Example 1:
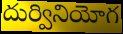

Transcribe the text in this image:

దుర్వినియోగ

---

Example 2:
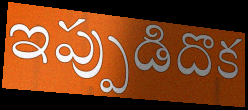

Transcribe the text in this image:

ఇప్పుడిదొక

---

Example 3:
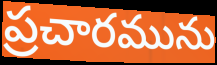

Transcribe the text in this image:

ప్రచారమును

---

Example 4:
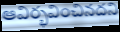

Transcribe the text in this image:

ఆవిర్భవించినదని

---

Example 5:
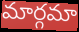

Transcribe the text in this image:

మార్గమా